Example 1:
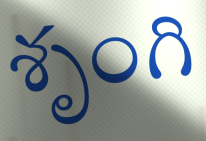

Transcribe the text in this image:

శృంగి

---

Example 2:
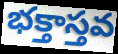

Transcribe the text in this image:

భక్తాస్తవ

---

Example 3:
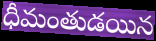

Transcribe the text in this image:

ధీమంతుడయిన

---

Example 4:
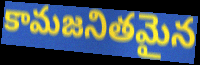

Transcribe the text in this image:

కామజనితమైన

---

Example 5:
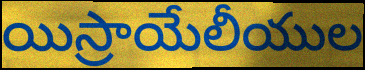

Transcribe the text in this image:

యిస్రాయేలీయుల